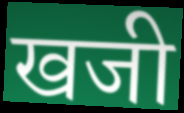
खजी